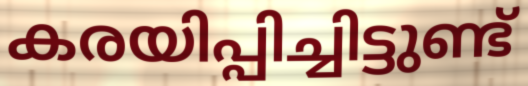
കരയിപ്പിച്ചിട്ടുണ്ട്